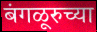
बंगळूरुच्या